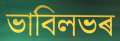
ভাবিলভৰ